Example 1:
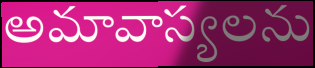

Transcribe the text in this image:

అమావాస్యలను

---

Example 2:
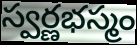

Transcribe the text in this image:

స్వర్ణభస్మం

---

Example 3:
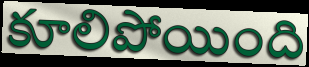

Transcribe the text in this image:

కూలిపోయింది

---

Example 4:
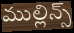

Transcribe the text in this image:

ముల్లిన్స్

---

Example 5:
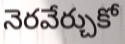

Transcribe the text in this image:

నెరవేర్చుకో